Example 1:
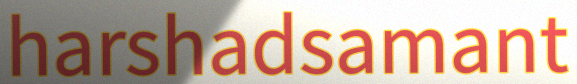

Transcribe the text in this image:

harshadsamant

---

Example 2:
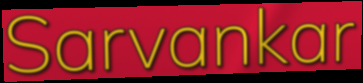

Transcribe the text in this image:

Sarvankar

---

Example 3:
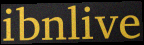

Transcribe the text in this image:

ibnlive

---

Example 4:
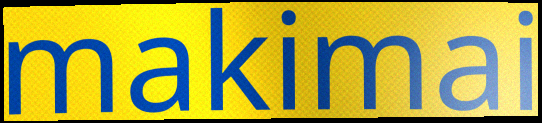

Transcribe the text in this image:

makimai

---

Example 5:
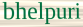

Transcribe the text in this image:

bhelpuri